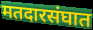
मतदारसंघात